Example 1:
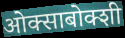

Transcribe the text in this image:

ओक्साबोक्शी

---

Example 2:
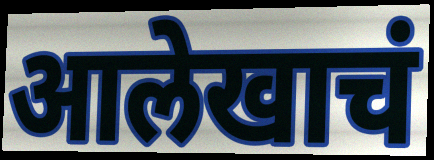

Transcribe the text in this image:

आलेखाचं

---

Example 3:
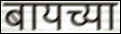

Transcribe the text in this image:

बायच्या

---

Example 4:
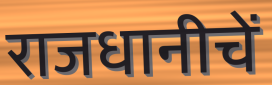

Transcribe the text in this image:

राजधानीचें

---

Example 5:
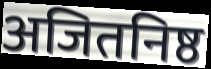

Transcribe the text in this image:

अजितनिष्ठ